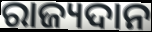
ରାଜ୍ୟଦାନ